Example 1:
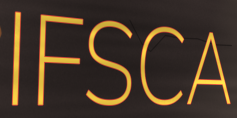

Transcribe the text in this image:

IFSCA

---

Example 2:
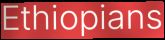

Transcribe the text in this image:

Ethiopians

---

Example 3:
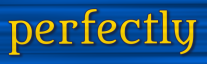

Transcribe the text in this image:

perfectly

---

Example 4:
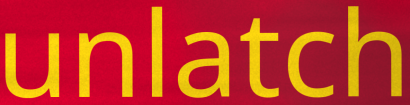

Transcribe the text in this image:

unlatch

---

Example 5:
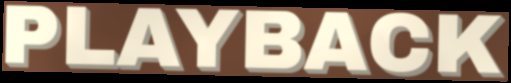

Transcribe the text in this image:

PLAYBACK